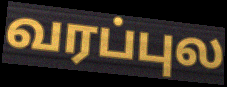
வரப்புல